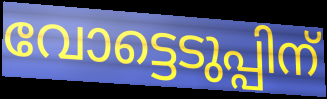
വോട്ടെടുപ്പിന്